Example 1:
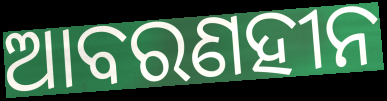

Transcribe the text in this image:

ଆବରଣହୀନ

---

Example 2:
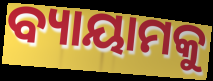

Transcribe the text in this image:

ବ୍ୟାୟାମକୁ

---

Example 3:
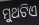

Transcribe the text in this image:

ମୁଥଟିଏ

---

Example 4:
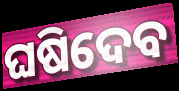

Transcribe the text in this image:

ଘଷିଦେବ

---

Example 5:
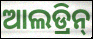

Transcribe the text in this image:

ଆଲଡ୍ରିନ୍